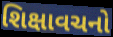
શિક્ષાવચનો